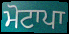
ਮੋਟਾਪਾ